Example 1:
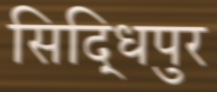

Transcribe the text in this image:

सिद्धिपुर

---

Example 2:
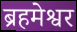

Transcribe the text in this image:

ब्रहमेश्वर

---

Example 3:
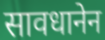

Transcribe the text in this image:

सावधानेन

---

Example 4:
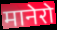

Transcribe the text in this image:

मानेरो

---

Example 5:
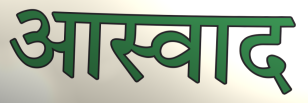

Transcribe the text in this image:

आस्‍वाद